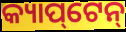
କ୍ୟାପ୍‌ଟେନ୍